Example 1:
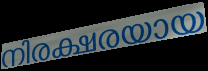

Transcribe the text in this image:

നിരക്ഷരയായ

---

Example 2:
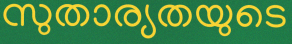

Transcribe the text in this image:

സുതാര്യതയുടെ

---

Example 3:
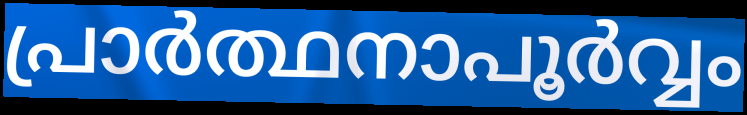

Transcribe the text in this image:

പ്രാർത്ഥനാപൂർവ്വം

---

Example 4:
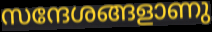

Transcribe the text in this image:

സന്ദേശങ്ങളാണു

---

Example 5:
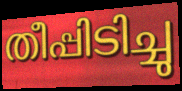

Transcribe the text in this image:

തീപ്പിടിച്ചു